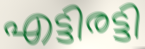
എട്ടിരട്ടി